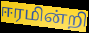
ஈரமின்றி